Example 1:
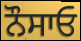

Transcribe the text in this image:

ਨੌਸਾਓ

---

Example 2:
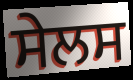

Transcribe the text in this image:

ਸੇਲਸ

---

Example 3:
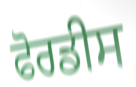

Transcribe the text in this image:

ਫੋਰਡੀਸ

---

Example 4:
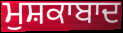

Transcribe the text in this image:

ਮੁਸ਼ਕਾਬਾਦ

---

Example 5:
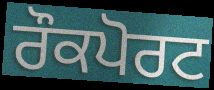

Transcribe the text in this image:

ਰੌਕਪੋਰਟ